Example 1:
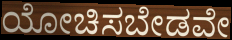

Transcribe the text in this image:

ಯೋಚಿಸಬೇಡವೇ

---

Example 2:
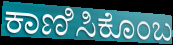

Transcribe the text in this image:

ಕಾಣಿಸಿಕೊಂಬ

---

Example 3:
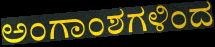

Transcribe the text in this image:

ಅಂಗಾಂಶಗಳಿಂದ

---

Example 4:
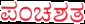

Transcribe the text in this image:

ಪಂಚಶತ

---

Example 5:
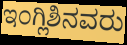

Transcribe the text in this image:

ಇಂಗ್ಲಿಶಿನವರು